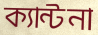
ক্যান্টনা